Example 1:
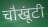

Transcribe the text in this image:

चौखूंटी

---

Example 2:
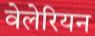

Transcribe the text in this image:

वेलेरियन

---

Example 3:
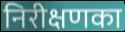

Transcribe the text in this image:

निरीक्षणका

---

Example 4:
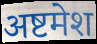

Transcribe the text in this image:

अष्टमेश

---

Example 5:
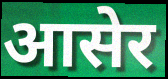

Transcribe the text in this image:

आसेर